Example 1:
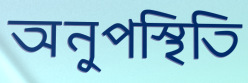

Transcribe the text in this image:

অনুপস্থিতি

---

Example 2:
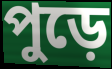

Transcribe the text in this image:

পুড়ে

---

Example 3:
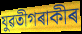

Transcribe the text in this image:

যুৱতীগৰাকীৰ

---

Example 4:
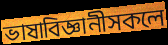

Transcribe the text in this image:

ভাষাবিজ্ঞানীসকলে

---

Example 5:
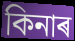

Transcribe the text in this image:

কিনাৰ